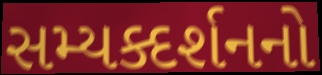
સમ્યક્દર્શનનો